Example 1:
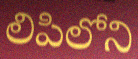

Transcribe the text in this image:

లిపిలోని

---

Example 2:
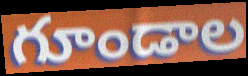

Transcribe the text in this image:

గూండాల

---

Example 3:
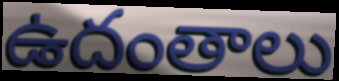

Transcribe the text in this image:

ఉదంతాలు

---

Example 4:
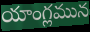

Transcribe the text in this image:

యాంగ్లమున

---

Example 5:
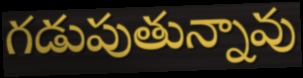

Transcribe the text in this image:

గడుపుతున్నావు